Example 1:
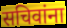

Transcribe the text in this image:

सचिवांना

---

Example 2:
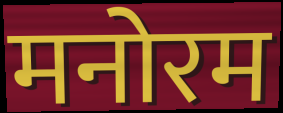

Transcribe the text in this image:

मनोरम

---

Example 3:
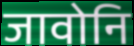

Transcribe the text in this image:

जावोनि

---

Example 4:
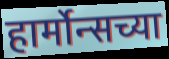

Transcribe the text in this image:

हार्मोन्सच्या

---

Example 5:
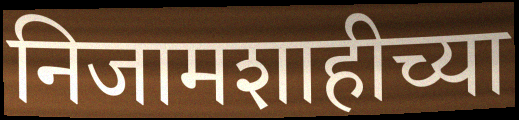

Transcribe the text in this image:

निजामशाहीच्या